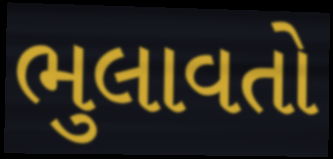
ભુલાવતો